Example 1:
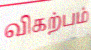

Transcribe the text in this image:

விகற்பம்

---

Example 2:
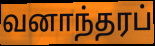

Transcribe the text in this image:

வனாந்தரப்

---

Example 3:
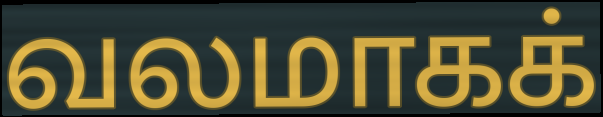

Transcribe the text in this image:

வலமாகக்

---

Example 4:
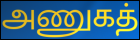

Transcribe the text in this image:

அணுகத்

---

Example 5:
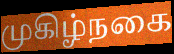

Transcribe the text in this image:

முகிழ்நகை